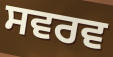
ਸਵਰਵ